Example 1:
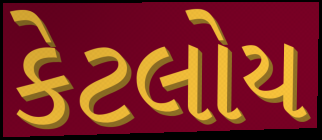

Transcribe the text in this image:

કેટલોય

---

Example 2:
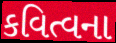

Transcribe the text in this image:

કવિત્વના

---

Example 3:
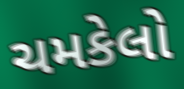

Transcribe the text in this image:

ચમકેલો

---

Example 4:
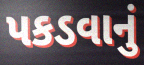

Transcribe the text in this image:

પકડવાનું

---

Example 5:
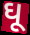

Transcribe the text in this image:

ઘૂ